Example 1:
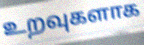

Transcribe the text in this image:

உறவுகளாக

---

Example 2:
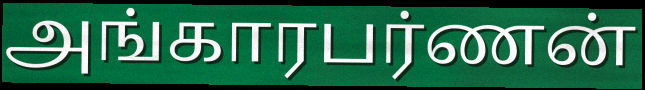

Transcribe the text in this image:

அங்காரபர்ணன்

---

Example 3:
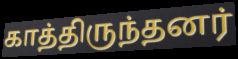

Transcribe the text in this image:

காத்திருந்தனர்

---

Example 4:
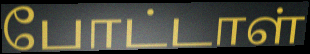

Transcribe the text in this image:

போட்டாள்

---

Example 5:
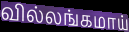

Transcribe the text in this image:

வில்லங்கமாய்